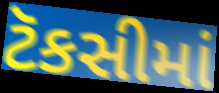
ટૅકસીમાં